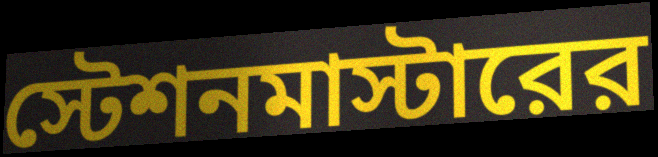
স্টেশনমাস্টারের